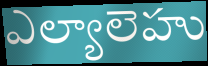
ఎల్యాలెహు